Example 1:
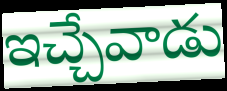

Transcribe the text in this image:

ఇచ్చేవాడు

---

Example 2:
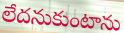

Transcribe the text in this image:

లేదనుకుంటాను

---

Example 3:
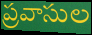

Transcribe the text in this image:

ప్రవాసుల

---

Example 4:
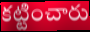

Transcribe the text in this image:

కట్టించారు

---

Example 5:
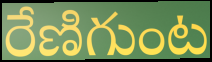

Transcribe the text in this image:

రేణిగుంట